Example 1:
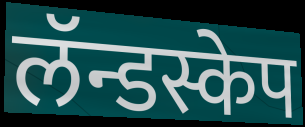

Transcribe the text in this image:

लॅन्डस्केप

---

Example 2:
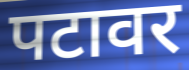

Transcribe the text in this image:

पटावर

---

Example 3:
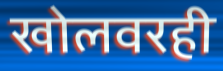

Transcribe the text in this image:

खोलवरही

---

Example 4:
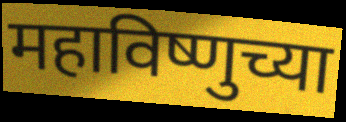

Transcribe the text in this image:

महाविष्णुच्या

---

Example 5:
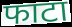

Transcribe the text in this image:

फाटा